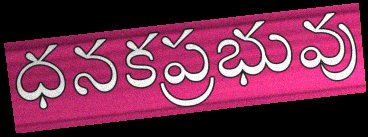
ధనకప్రభువు